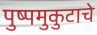
पुष्पमुकुटाचे